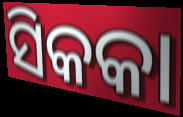
ସିକକା